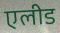
एलीड